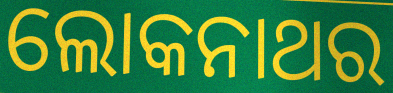
ଲୋକନାଥର